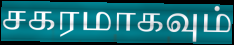
சகரமாகவும்